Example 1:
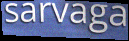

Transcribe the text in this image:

sarvaga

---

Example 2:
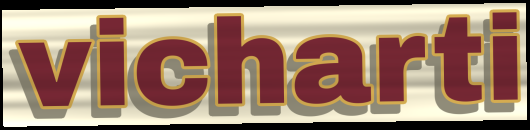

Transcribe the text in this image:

vicharti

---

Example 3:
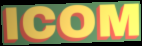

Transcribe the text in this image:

ICOM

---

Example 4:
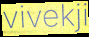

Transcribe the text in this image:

vivekji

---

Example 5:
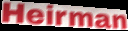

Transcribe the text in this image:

Heirman